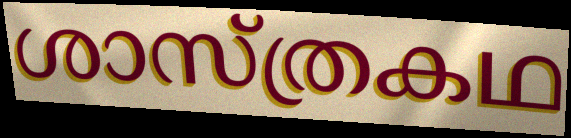
ശാസ്ത്രകഥ